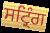
ਸਟ੍ਰਿੰਗ